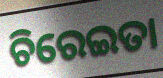
ଚିରେଇତା